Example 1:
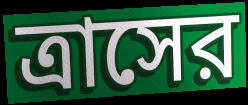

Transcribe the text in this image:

ত্রাসের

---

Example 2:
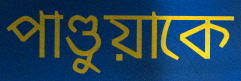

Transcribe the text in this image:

পাণ্ডুয়াকে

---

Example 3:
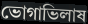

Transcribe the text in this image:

ভোগাভিলাষ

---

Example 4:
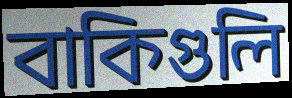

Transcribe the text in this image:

বাকিগুলি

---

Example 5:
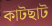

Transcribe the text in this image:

কাটছাট